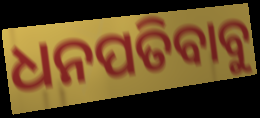
ଧନପତିବାବୁ